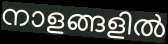
നാളങ്ങളിൽ